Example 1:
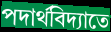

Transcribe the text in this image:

পদার্থবিদ্যাতে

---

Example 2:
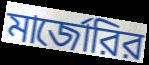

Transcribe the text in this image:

মার্জোরির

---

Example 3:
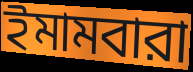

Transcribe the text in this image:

ইমামবারা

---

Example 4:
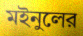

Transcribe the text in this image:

মইনুলের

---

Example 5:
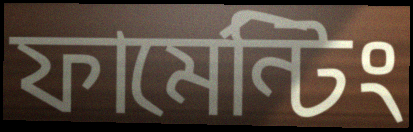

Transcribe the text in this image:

ফার্মেন্টিং